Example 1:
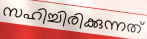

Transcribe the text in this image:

സഹിച്ചിരിക്കുന്നത്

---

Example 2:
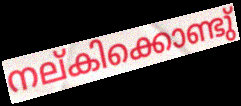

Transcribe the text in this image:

നല്കിക്കൊണ്ടു്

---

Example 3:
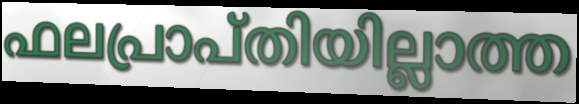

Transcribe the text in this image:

ഫലപ്രാപ്തിയില്ലാത്ത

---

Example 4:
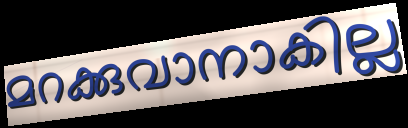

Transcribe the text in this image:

മറക്കുവാനാകില്ല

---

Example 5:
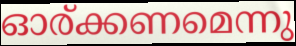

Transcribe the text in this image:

ഓര്ക്കണമെന്നു